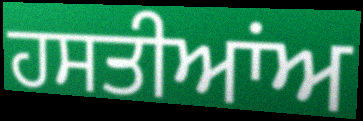
ਹਸਤੀਆਂਅ